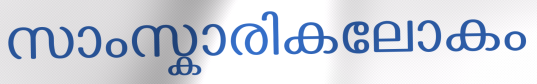
സാംസ്കാരികലോകം